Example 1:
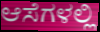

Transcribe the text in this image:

ಆಸೆಗಳಲ್ಲಿ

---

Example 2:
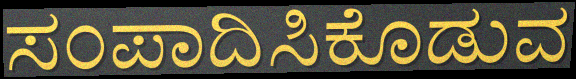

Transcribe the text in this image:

ಸಂಪಾದಿಸಿಕೊಡುವ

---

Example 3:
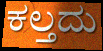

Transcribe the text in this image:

ಕಲ್ತದು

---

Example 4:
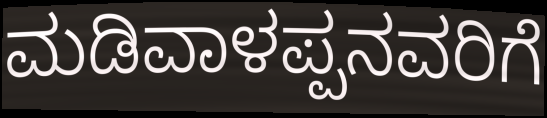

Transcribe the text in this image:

ಮಡಿವಾಳಪ್ಪನವರಿಗೆ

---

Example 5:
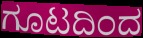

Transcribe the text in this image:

ಗೂಟದಿಂದ